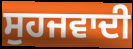
ਸੁਹਜਵਾਦੀ